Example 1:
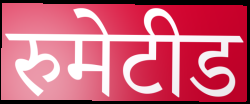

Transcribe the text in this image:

रुमेटीड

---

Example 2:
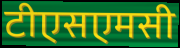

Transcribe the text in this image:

टीएसएमसी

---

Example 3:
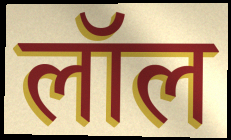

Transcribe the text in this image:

लॉल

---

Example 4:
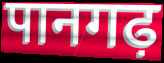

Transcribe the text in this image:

पानगढ़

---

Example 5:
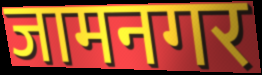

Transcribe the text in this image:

जामनगर